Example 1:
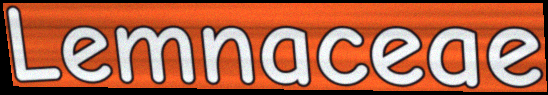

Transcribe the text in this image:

Lemnaceae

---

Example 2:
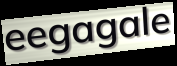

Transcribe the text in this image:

eegagale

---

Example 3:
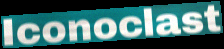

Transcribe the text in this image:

Iconoclast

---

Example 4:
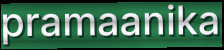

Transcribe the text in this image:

pramaanika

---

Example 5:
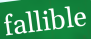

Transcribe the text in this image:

fallible